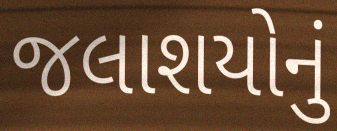
જલાશયોનું